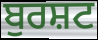
ਬੁਰਸ਼ਟ